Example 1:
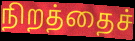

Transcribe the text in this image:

நிறத்தைச்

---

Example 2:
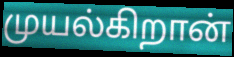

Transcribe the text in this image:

முயல்கிறான்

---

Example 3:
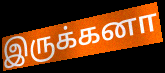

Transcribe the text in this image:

இருக்கனா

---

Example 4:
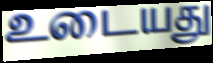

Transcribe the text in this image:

உடையது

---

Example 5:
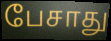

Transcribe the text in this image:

பேசாது